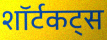
शॉर्टकट्स